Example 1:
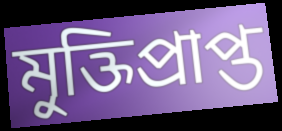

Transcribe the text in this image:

মুক্তিপ্রাপ্ত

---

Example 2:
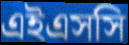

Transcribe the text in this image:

এইএসসি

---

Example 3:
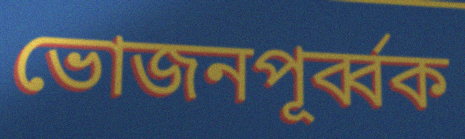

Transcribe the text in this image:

ভোজনপূর্ব্বক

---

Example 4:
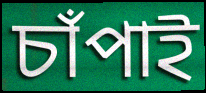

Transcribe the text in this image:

চাঁপাই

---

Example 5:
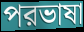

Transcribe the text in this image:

পরভাষা